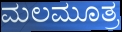
ಮಲಮೂತ್ರ